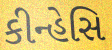
કીન્હેસિ